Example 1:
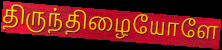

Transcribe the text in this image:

திருந்திழையோளே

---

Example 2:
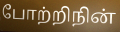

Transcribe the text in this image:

போற்றிநின்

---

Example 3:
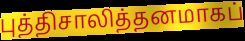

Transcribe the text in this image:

புத்திசாலித்தனமாகப்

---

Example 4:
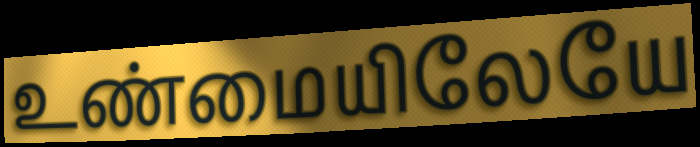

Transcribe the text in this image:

உண்மையிலேயே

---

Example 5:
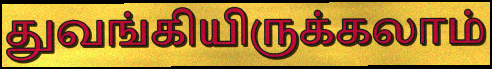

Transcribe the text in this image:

துவங்கியிருக்கலாம்